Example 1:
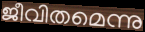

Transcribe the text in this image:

ജീവിതമെന്നു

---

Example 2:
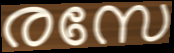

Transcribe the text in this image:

രസേ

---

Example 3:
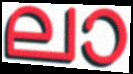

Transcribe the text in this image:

ലാ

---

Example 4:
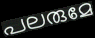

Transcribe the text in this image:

പലരുമേ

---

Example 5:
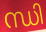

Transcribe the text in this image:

ന്ധി